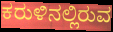
ಕರುಳಿನಲ್ಲಿರುವ